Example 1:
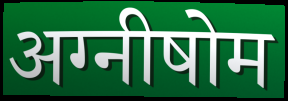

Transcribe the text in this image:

अग्नीषोम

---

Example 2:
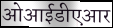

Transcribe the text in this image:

ओआईडीएआर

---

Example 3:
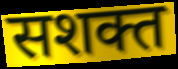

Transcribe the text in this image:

सशक्त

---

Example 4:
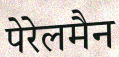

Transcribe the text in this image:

पेरेलमैन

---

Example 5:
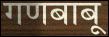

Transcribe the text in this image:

गणबाबू